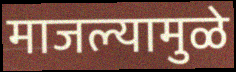
माजल्यामुळे